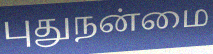
புதுநன்மை